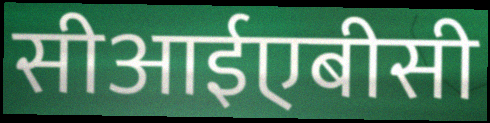
सीआईएबीसी